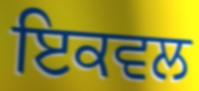
ਇਕਵਲ